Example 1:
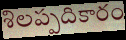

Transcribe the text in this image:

శిలప్పదికారం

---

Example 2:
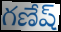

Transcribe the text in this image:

గణేష్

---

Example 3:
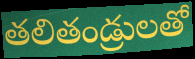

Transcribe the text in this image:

తలితండ్రులతో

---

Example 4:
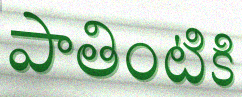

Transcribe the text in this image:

పాతింటికి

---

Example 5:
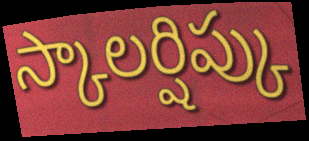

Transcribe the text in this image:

స్కాలర్షిప్కు